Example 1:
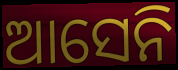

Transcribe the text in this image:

ଆସେନି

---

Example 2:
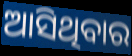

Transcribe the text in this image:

ଆସିଥିବାର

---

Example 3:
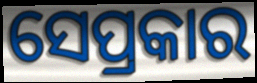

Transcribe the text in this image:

ସେପ୍ରକାର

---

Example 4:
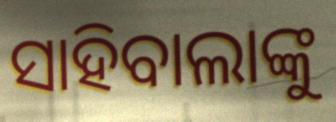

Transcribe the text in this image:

ସାହିବାଲାଙ୍କୁ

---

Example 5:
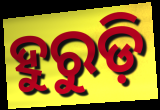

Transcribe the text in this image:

ହୁରୁଡ଼ି